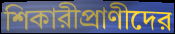
শিকারীপ্রাণীদের